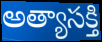
అత్యాసక్తి